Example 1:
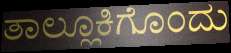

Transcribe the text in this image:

ತಾಲ್ಲೂಕಿಗೊಂದು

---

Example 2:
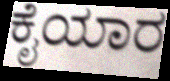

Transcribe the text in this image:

ಕೈಯಾರ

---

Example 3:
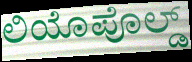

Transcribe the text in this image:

ಲಿಯೊಪೊಲ್ಡ್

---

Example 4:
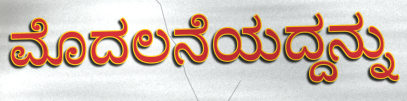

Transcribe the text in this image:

ಮೊದಲನೆಯದ್ದನ್ನು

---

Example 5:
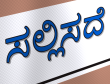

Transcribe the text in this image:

ಸಲ್ಲಿಸದೆ